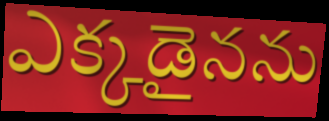
ఎక్కడైనను